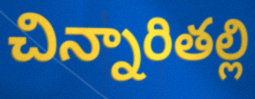
చిన్నారితల్లి